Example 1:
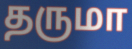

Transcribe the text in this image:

தருமா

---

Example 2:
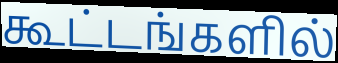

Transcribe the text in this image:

கூட்டங்களில்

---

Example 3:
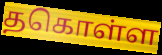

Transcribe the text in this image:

தகொள்ள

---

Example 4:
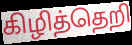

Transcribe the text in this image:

கிழித்தெறி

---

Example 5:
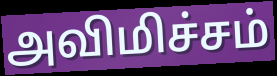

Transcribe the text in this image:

அவிமிச்சம்